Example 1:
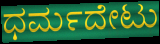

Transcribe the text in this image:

ಧರ್ಮದೇಟು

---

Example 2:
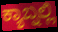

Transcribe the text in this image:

ಕ್ಯಾಬ್ನಲ್ಲಿ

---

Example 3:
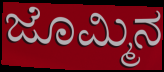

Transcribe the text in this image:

ಜೊಮ್ಮಿನ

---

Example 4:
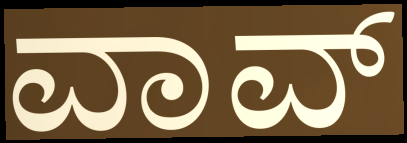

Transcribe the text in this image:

ವಾವ್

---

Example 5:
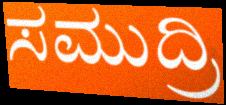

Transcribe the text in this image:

ಸಮುದ್ರಿ